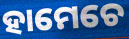
ହାମେଚେ